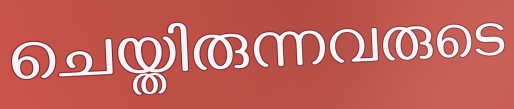
ചെയ്തിരുന്നവരുടെ